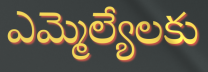
ఎమ్మెల్యేలకు